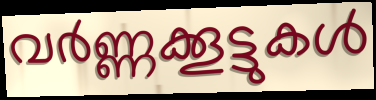
വർണ്ണക്കൂട്ടുകൾ